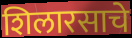
शिलारसाचे